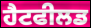
ਹੈਟਫੀਲਡ